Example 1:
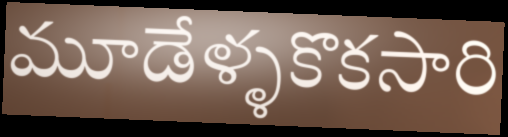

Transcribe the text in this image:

మూడేళ్ళకొకసారి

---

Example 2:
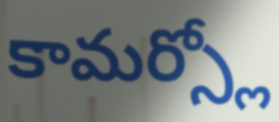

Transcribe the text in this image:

కామర్స్లో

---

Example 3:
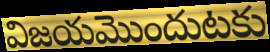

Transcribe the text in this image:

విజయమొందుటకు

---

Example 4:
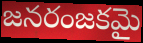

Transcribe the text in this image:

జనరంజకమై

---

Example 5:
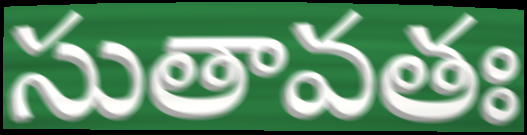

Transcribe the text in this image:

సుతావతః